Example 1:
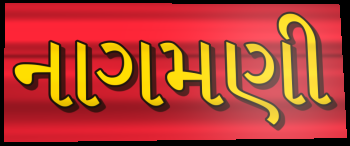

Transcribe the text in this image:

નાગમણી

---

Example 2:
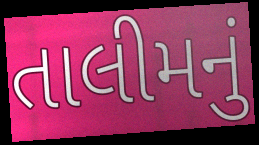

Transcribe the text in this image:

તાલીમનું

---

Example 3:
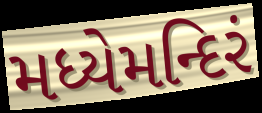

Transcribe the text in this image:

મધ્યેમન્દિરં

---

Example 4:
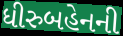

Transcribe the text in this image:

ધીરુબહેનની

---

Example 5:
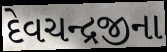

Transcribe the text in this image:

દેવચન્દ્રજીના